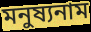
মনুষ্যনাম